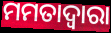
ମମତାଦ୍ୱାରା